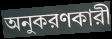
অনুকরণকারী